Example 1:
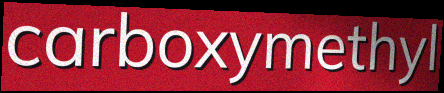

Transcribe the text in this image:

carboxymethyl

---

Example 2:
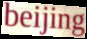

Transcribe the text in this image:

beijing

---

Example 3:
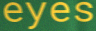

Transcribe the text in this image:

eyes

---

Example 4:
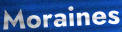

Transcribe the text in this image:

Moraines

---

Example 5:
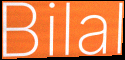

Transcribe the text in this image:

Bilal